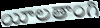
యీలతాంగి